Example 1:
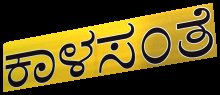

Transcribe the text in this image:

ಕಾಳಸಂತೆ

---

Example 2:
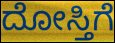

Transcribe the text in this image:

ದೋಸ್ತಿಗೆ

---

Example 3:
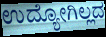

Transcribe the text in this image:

ಉದ್ಯೋಗಿಲ್ಲದ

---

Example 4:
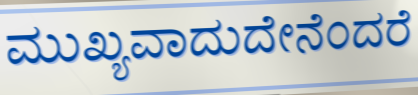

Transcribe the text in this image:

ಮುಖ್ಯವಾದುದೇನೆಂದರೆ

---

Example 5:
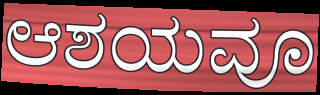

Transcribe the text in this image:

ಆಶಯವೂ